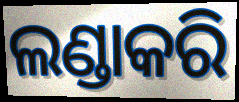
ଲଣ୍ଡାକରି